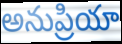
అనుప్రియా